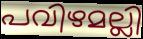
പവിഴമല്ലി